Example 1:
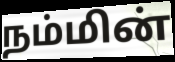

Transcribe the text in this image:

நம்மின்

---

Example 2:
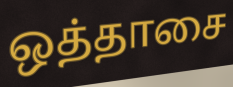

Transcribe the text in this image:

ஒத்தாசை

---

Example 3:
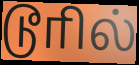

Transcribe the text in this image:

டூரில்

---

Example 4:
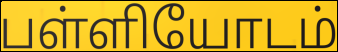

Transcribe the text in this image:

பள்ளியோடம்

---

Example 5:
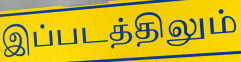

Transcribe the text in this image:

இப்படத்திலும்